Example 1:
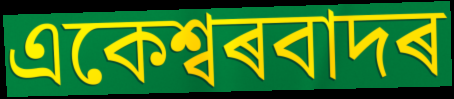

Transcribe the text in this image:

একেশ্বৰবাদৰ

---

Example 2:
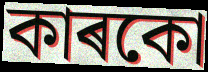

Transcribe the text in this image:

কাৰকো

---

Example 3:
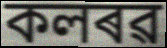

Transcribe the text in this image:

কলৰৱ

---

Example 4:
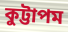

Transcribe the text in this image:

কুট্টাপম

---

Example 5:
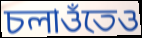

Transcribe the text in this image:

চলাওঁতেও